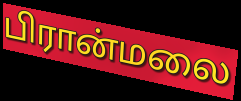
பிரான்மலை